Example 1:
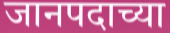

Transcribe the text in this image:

जानपदाच्या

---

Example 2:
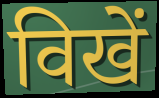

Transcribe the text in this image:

विखें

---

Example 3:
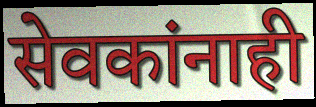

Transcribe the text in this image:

सेवकांनाही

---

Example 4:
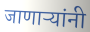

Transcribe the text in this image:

जाणाऱ्यांनी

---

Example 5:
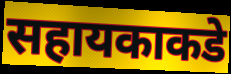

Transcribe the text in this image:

सहायकाकडे